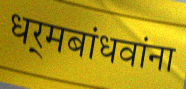
धर्मबांधवांना